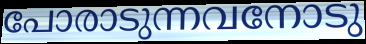
പോരാടുന്നവനോടു